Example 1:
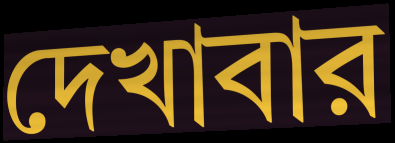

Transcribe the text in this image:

দেখাবার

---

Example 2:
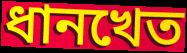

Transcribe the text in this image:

ধানখেত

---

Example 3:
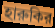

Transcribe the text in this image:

হারুকির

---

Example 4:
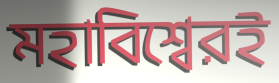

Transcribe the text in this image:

মহাবিশ্বেরই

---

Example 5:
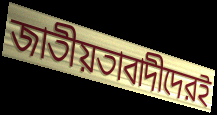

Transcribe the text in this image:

জাতীয়তাবাদীদেরই